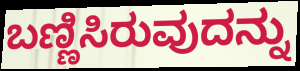
ಬಣ್ಣಿಸಿರುವುದನ್ನು